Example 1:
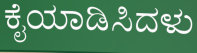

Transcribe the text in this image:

ಕೈಯಾಡಿಸಿದಳು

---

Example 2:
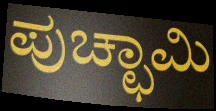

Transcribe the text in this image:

ಪುಚ್ಛಾಮಿ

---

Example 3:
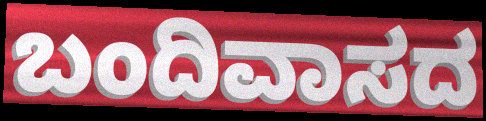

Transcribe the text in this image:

ಬಂದಿವಾಸದ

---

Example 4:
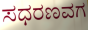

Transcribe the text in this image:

ಸಧರಣವಗ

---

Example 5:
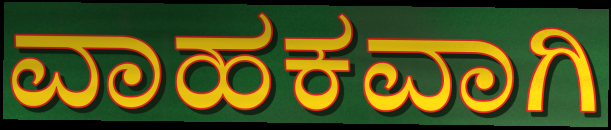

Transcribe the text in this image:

ವಾಹಕವಾಗಿ